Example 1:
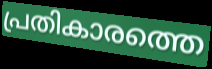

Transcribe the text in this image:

പ്രതികാരത്തെ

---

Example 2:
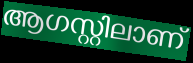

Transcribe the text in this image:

ആഗസ്റ്റിലാണ്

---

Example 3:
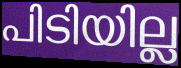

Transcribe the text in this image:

പിടിയില്ല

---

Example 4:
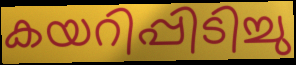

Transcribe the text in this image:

കയറിപ്പിടിച്ചു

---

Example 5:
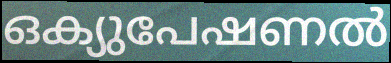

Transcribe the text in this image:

ഒക്യുപേഷണൽ